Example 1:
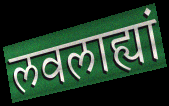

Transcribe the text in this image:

लवलाह्यां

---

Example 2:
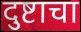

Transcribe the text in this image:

दुष्टाचा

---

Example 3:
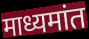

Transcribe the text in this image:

माध्यमांत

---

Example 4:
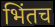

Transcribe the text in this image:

भिंतच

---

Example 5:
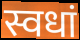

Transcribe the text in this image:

स्वधां